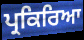
ਪ੍ਰਕਿਰਿਆ